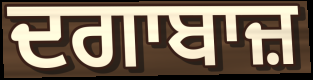
ਦਗਾਬਾਜ਼